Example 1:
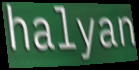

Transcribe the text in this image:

halyan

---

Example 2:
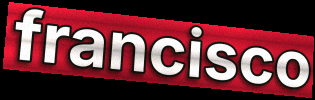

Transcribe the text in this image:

francisco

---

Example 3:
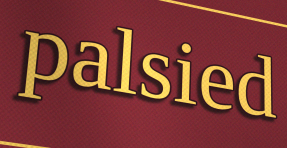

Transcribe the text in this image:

palsied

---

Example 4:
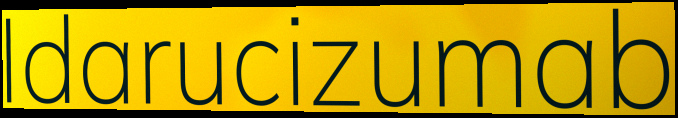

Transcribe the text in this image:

Idarucizumab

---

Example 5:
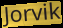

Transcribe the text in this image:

Jorvik